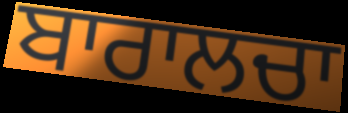
ਬਾਰਾਲਚਾ